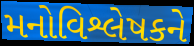
મનોવિશ્લેષકને